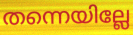
തന്നെയില്ലേ